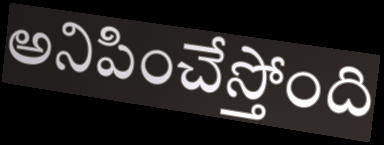
అనిపించేస్తోంది